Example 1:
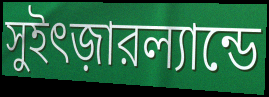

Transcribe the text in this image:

সুইৎজ়ারল্যান্ডে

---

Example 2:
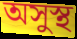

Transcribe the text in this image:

অসুস্থ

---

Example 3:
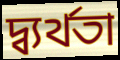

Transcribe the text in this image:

দ্ব্যর্থতা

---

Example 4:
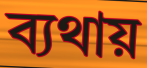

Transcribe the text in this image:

ব্যথায়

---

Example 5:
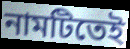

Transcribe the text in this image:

নামটিতেই